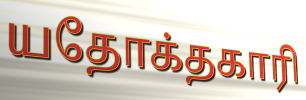
யதோக்தகாரி